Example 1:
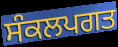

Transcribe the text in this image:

ਸੰਕਲਪਗਤ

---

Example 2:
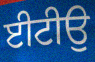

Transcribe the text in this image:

ਈਟੀਉ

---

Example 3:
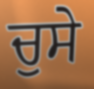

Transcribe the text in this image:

ਚੁਸੇ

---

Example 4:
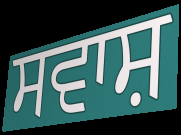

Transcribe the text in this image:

ਸਵਾਸ਼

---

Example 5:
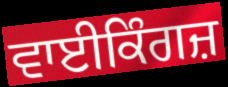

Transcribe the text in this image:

ਵਾਈਕਿੰਗਜ਼